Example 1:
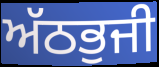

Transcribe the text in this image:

ਅੱਠਭੁਜੀ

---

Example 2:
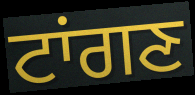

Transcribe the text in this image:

ਟਾਂਗਣ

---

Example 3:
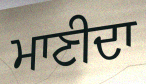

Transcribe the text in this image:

ਮਾਣੀਦਾ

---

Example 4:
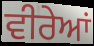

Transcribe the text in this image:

ਵੀਰੇਆਂ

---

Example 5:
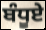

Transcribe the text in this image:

ਬੰਧੂਏ